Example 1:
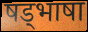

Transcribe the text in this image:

षड्भाषा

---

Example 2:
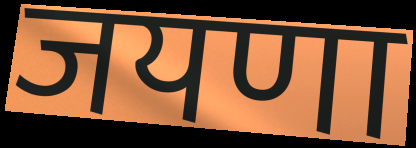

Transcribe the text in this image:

जयणा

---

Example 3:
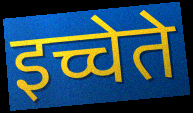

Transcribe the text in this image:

इच्चेते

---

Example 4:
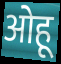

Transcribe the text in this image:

ओहू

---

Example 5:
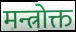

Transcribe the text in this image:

मन्त्रोक्त